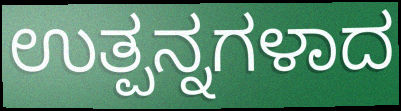
ಉತ್ಪನ್ನಗಳಾದ